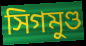
সিগমুণ্ড